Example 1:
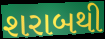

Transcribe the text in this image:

શરાબથી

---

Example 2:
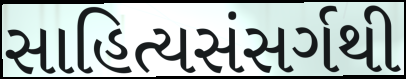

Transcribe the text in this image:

સાહિત્યસંસર્ગથી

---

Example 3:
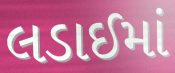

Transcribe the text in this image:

લડાઈમાં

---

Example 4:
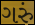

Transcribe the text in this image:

ગરું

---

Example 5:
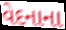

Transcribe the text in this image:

વેદનાના